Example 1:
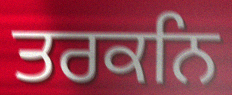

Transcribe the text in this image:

ਤਰਕਨਿ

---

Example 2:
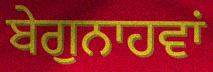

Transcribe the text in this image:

ਬੇਗੁਨਾਹਵਾਂ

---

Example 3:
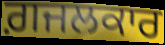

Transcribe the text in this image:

ਗ਼ਜਲਕਾਰ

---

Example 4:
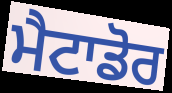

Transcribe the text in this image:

ਮੈਟਾਡੋਰ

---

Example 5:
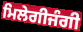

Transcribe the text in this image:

ਮਿਲੇਗੀਜੰਗੀ